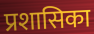
प्रशासिका